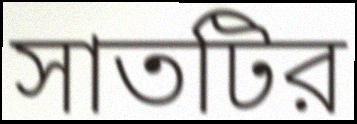
সাতটির